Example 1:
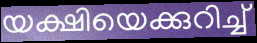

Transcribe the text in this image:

യക്ഷിയെക്കുറിച്ച്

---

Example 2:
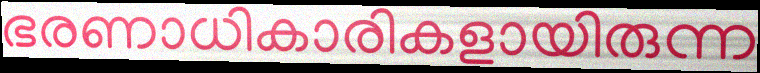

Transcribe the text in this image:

ഭരണാധികാരികളായിരുന്ന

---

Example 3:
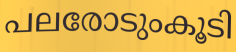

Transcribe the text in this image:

പലരോടുംകൂടി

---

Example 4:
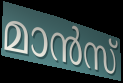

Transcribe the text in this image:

മാൻസ്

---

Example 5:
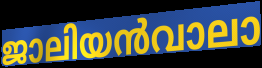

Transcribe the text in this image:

ജാലിയൻവാലാ